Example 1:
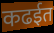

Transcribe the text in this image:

कढईत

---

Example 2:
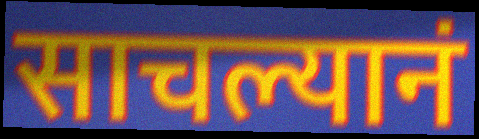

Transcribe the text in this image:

साचल्यानं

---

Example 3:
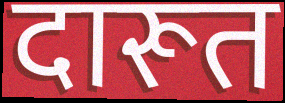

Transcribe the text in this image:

दारूत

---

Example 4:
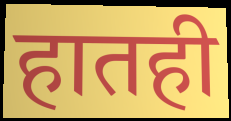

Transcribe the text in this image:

हातही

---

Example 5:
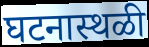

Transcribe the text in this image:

घटनास्थळी